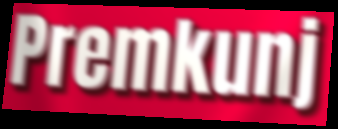
Premkunj